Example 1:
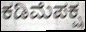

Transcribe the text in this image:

ಕಡಿಮೆಪಕ್ಷ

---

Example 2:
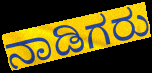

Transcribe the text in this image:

ನಾಡಿಗರು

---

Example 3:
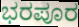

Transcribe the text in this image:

ಭರಪೂರ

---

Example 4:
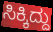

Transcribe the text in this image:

ಸಿಕ್ಕಿದ್ದು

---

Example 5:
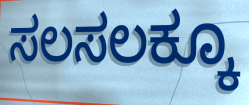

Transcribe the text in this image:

ಸಲಸಲಕ್ಕೂ